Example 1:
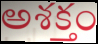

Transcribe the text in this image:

అశక్తం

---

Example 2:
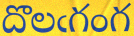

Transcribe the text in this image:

దొలఁగంగ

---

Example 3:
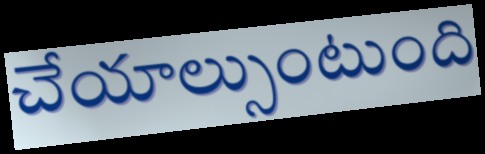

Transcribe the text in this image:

చేయాల్సుంటుంది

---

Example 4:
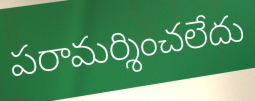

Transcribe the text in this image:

పరామర్శించలేదు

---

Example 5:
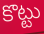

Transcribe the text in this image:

కొట్టు